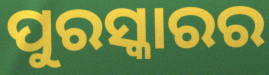
ପୁରସ୍କାରର